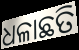
ଧଳାଛତି